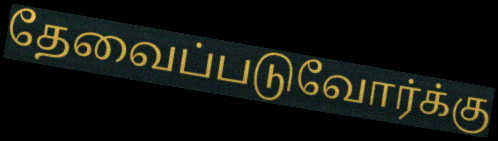
தேவைப்படுவோர்க்கு